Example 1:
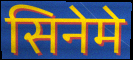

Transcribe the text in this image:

सिनेमे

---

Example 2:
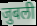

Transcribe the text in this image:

जुबली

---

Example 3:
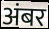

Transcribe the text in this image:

अंबर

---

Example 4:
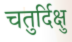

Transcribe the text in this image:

चतुर्दिक्षु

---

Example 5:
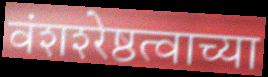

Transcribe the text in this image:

वंशश्रेष्ठत्वाच्या